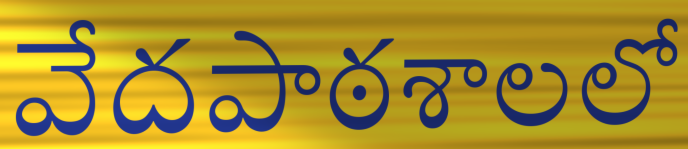
వేదపాఠశాలలో